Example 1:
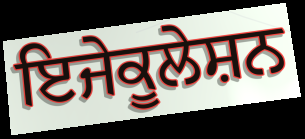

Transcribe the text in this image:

ਇਜੇਕੂਲੇਸ਼ਨ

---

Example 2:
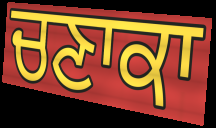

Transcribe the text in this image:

ਚਣਾਕਾ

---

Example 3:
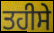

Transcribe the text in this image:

ਤਹੀਸੇ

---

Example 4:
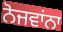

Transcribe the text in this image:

ਨੋਜਵਾਂਨਾ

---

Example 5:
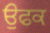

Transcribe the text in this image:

ਉਫਕ